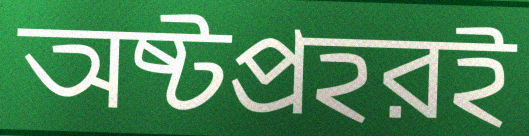
অষ্টপ্রহরই